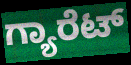
ಗ್ಯಾರೆಟ್